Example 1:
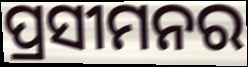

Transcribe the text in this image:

ପ୍ରସୀମନର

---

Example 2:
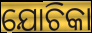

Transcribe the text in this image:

ଯୋଚିକା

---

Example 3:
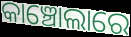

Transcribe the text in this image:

କାଞ୍ଚୋଲାରେ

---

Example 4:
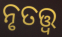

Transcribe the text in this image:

ନୃତତ୍ତ୍ଵ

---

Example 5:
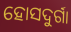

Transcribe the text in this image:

ହୋସଦୁର୍ଗା